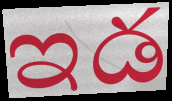
ఇడ